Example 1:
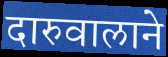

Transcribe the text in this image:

दारुवालाने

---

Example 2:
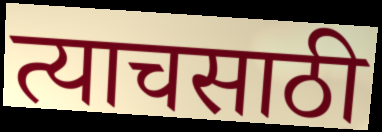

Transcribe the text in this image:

त्याचसाठी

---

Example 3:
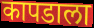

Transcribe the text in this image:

कापडाला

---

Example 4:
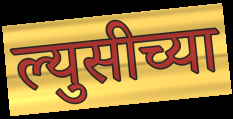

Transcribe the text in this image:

ल्युसीच्या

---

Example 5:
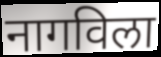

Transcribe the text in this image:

नागविला